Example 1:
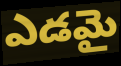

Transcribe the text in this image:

ఎడమై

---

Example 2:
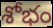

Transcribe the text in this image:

శోభం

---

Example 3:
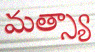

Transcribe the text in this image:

మత్స్యా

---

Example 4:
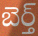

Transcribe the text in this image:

బెర్త్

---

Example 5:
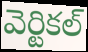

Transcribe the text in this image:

వెర్టికల్